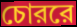
চোররে